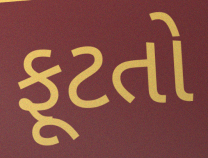
ફૂટતો